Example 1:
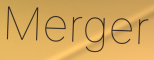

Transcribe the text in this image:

Merger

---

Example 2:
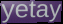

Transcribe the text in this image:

yetay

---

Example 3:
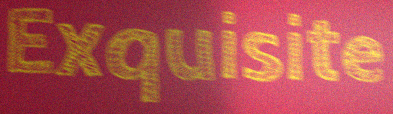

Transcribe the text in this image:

Exquisite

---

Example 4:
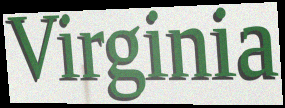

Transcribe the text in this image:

Virginia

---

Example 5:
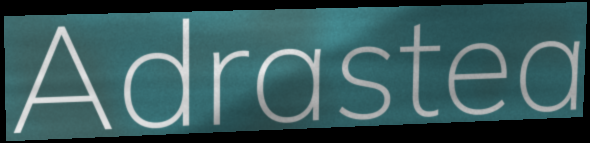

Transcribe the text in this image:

Adrastea